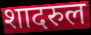
शादरुल